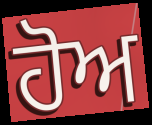
ਹੋਅ